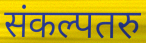
संकल्पतरु